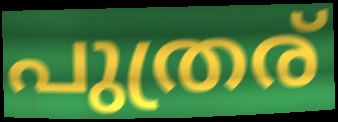
പുത്രര്